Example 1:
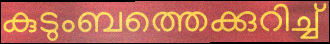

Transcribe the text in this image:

കുടുംബത്തെക്കുറിച്ച്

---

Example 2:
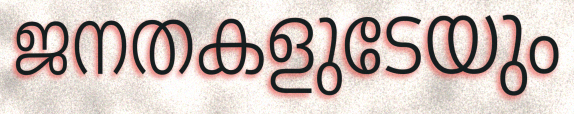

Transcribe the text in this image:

ജനതകളുടേയും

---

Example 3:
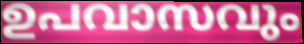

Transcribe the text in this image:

ഉപവാസവും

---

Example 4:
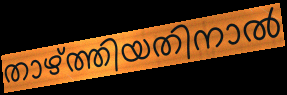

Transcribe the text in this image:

താഴ്ത്തിയതിനാൽ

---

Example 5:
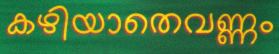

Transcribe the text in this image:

കഴിയാതെവണ്ണം